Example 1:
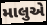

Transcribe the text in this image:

માલુએ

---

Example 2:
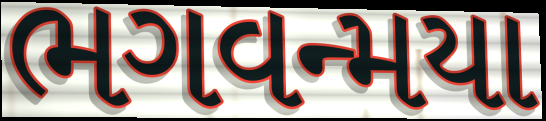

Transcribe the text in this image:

ભગવન્મયા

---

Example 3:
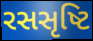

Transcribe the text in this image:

રસસૃષ્ટિ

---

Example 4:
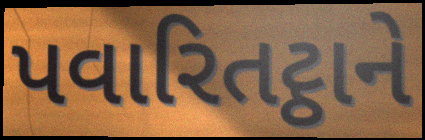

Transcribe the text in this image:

પવારિતટ્ઠાને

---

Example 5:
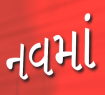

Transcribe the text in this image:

નવમાં